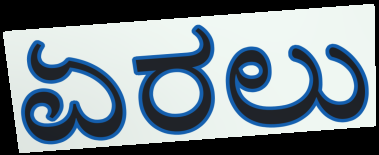
ಏರಲು